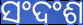
ସଂଦଂଶ